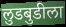
लुडबुडीला